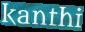
kanthi